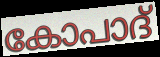
കോപാദ്